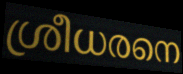
ശ്രീധരനെ